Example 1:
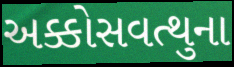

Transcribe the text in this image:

અક્કોસવત્થુના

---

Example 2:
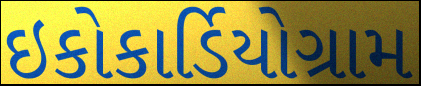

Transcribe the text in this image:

ઇકોકાર્ડિયોગ્રામ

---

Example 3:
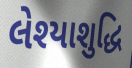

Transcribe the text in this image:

લેશ્યાશુદ્ધિ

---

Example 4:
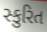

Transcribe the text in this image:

સ્કુરિત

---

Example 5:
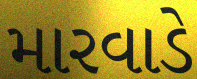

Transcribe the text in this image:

મારવાડે